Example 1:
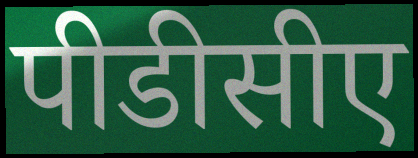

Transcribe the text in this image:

पीडीसीए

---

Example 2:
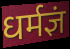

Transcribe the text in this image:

धर्मज्ञं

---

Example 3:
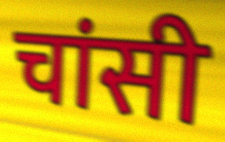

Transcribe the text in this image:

चांसी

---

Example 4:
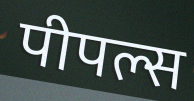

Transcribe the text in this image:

पीपल्स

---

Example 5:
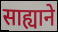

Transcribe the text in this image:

साह्याने